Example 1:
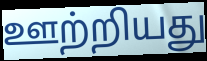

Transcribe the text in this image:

ஊற்றியது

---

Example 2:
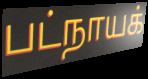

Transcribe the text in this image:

பட்நாயக்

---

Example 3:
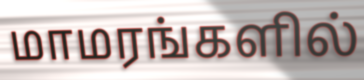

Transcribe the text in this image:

மாமரங்களில்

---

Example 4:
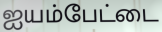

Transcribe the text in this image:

ஐயம்பேட்டை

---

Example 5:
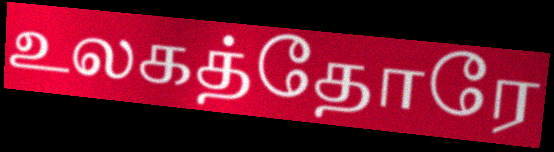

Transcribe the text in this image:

உலகத்தோரே